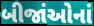
બીજાંઓનાં